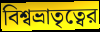
বিশ্বভ্রাতৃত্বের